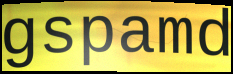
gspamd